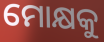
ମୋକ୍ଷକୁ